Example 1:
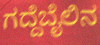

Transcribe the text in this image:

ಗದ್ದೆಬೈಲಿನ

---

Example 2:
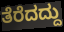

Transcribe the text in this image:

ತೆರೆದದ್ದು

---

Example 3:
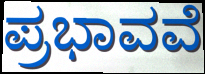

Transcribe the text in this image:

ಪ್ರಭಾವವೆ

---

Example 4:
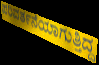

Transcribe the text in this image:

ಪರಿವರ್ತನೆಯಾಗುತ್ತಿದ್ದ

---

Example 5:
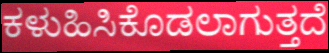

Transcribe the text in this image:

ಕಳುಹಿಸಿಕೊಡಲಾಗುತ್ತದೆ